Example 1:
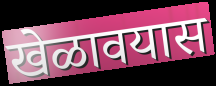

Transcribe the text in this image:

खेळावयास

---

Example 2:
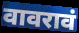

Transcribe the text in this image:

वावरावं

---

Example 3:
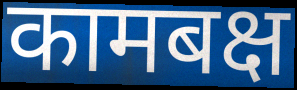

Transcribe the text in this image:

कामबक्ष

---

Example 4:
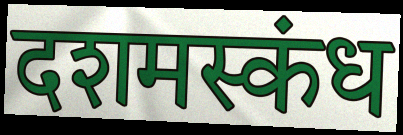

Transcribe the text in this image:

दशमस्कंध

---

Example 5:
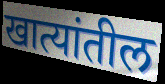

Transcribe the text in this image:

खात्यांतील